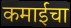
कमाईचा